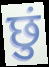
छुं